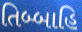
તિબ્બાહિ